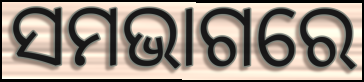
ସମଭାଗରେ